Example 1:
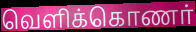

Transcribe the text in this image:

வெளிக்கொணர்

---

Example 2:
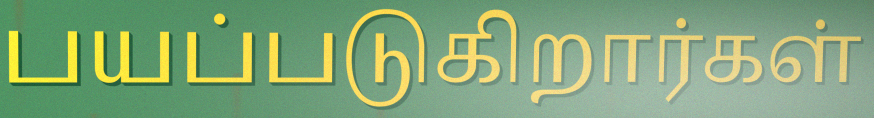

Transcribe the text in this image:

பயப்படுகிறார்கள்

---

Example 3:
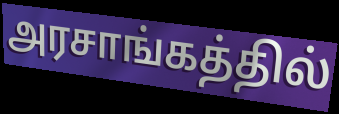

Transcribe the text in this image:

அரசாங்கத்தில்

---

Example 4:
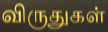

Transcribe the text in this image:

விருதுகள்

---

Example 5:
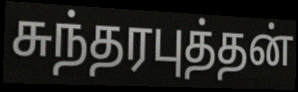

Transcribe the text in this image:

சுந்தரபுத்தன்